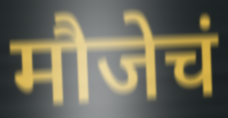
मौजेचं